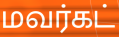
மவர்கட்